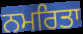
ਨਮਰਿਤਾ